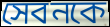
সেবনকে